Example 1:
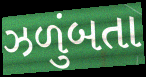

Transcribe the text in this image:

ઝળુંબતા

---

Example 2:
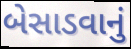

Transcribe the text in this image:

બેસાડવાનું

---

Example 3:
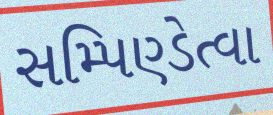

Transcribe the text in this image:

સમ્પિણ્ડેત્વા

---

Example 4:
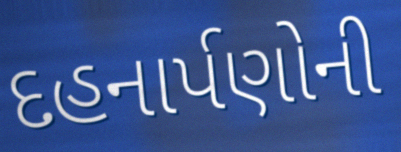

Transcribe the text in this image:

દહનાર્પણોની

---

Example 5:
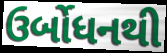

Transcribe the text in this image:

ઉર્બોધનથી